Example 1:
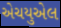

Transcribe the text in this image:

એચયુએલ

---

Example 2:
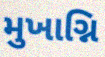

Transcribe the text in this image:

મુખાગ્નિ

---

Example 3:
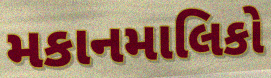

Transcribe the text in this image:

મકાનમાલિકો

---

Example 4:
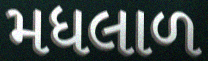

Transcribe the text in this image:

મધલાળ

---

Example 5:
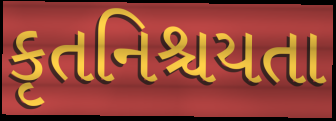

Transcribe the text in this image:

કૃતનિશ્ચયતા